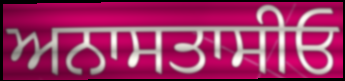
ਅਨਾਸਤਾਸੀਓ